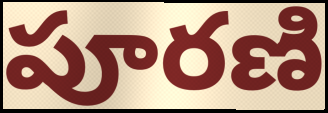
పూరణి